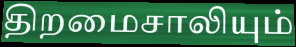
திறமைசாலியும்